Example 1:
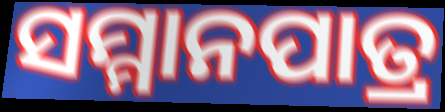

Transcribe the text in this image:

ସମ୍ମାନପାତ୍ର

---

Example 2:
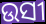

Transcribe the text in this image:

ଉସୀ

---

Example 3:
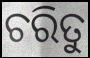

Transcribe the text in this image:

ଚରିତୁ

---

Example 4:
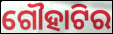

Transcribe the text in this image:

ଗୌହାଟିର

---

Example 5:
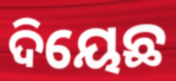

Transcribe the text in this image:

ଦିୟେଛ